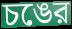
চঙের